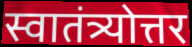
स्वातंत्र्योत्तर